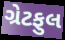
ગ્રેટફુલ